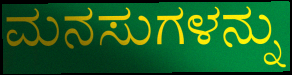
ಮನಸುಗಳನ್ನು